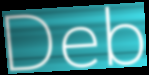
Deb